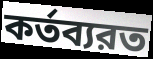
কর্তব্যরত